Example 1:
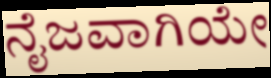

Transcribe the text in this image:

ನೈಜವಾಗಿಯೇ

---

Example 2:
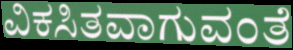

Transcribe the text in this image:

ವಿಕಸಿತವಾಗುವಂತೆ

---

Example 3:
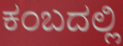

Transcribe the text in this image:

ಕಂಬದಲ್ಲಿ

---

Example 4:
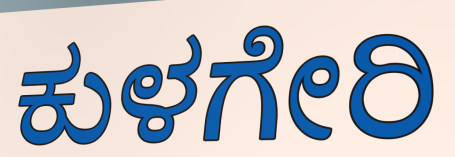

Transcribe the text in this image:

ಕುಳಗೇರಿ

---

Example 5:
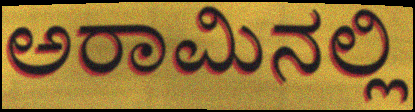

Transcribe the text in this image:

ಅರಾಮಿನಲ್ಲಿ